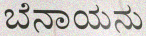
ಬೆನಾಯನು